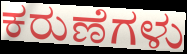
ಕರುಣೆಗಳು